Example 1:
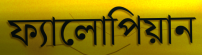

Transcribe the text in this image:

ফ্যালোপিয়ান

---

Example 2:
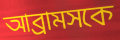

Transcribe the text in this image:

আব্রামসকে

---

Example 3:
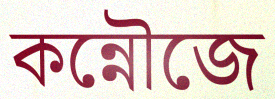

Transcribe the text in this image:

কন্নৌজে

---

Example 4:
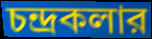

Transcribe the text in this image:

চন্দ্রকলার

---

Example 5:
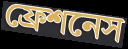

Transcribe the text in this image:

ফ্রেশনেস